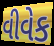
વીવેક